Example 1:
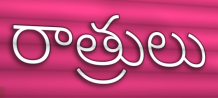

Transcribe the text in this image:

రాత్రులు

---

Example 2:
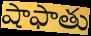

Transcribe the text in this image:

షాఫాతు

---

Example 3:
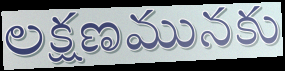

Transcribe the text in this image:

లక్షణమునకు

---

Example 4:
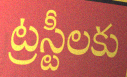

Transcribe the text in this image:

ట్రస్టీలకు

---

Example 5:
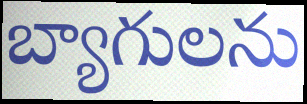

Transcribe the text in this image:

బ్యాగులను